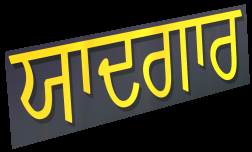
ਯਾਦਗਾਰ